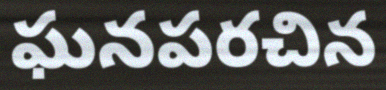
ఘనపరచిన